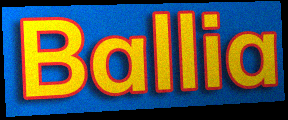
Ballia